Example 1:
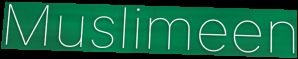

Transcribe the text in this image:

Muslimeen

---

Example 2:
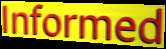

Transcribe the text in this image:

Informed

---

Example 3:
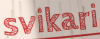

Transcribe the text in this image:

svikari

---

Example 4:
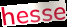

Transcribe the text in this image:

hesse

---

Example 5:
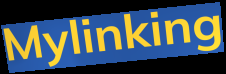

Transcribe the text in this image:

Mylinking